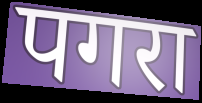
पगरा